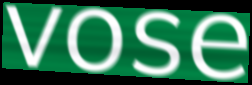
vose